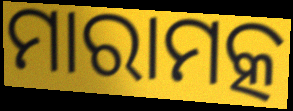
ମାରାମତ୍କ